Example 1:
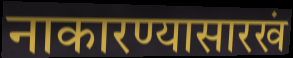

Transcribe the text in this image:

नाकारण्यासारखं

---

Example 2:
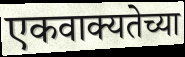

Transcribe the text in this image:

एकवाक्यतेच्या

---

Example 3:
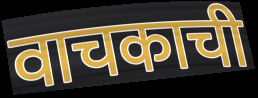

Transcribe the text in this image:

वाचकाची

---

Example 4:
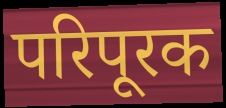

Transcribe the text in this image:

परिपूरक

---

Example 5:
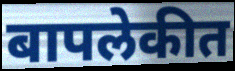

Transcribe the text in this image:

बापलेकीत